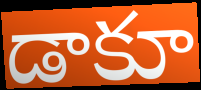
డాకూ